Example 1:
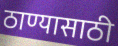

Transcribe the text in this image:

ठाण्यासाठी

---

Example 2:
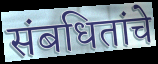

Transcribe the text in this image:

संबधितांचे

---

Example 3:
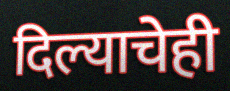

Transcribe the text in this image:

दिल्याचेही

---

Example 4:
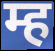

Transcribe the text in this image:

म्ह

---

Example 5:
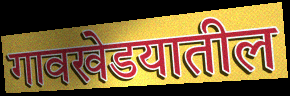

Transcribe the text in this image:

गावखेडयातील